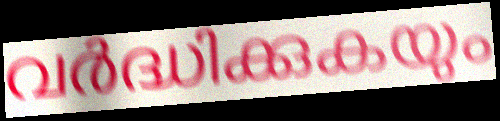
വർദ്ധിക്കുകയും